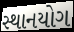
સ્થાનયોગ